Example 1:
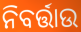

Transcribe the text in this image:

ନିବର୍ତ୍ତାଉ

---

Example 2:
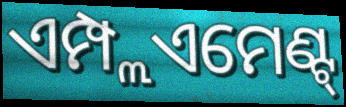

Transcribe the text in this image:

ଏମ୍ପ୍ଲଏମେଣ୍ଟ୍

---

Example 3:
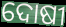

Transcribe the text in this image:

ଦୋଷୀ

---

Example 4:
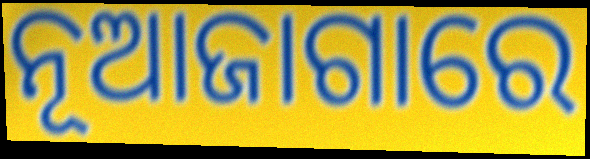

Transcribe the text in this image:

ନୂଆଜାଗାରେ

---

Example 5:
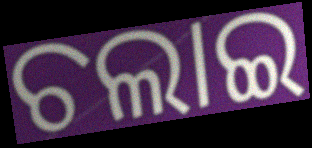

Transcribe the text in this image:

ଚଲାଇ